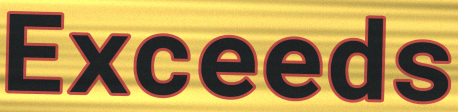
Exceeds